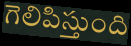
గెలిపిస్తుంది